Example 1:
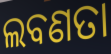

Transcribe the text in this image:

ଲବଣତା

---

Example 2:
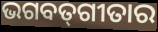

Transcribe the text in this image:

ଭଗବତ୍‍ଗୀତାର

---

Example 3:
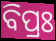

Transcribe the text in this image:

ବିପ୍ରଃ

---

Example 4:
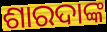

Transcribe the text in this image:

ଶାରଦାଙ୍କ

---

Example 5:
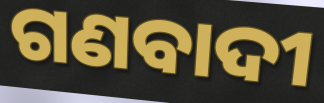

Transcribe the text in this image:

ଗଣବାଦୀ